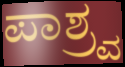
ಪಾಶ್ರ್ವ